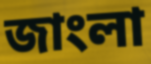
জাংলা